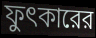
ফুৎকারের